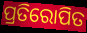
ପ୍ରତିରୋପିତ